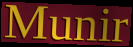
Munir